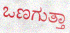
ಒಣಗುತ್ತಾ